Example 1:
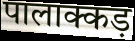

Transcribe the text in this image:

पालाक्कड़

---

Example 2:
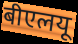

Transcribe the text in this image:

बीएलयू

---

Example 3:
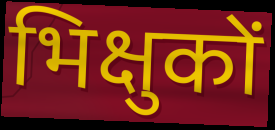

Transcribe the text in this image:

भिक्षुकों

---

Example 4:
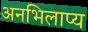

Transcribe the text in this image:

अनभिलाप्य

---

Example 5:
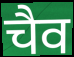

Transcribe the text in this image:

चैव